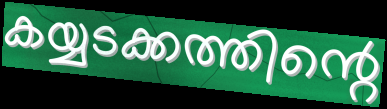
കയ്യടക്കത്തിന്റെ